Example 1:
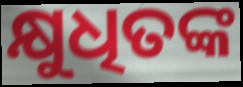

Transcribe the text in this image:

କ୍ଷୁଧିତଙ୍କ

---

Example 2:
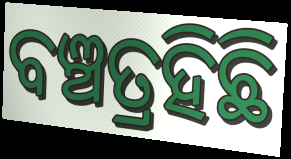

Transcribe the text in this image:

ବଞ୍ଚତ୍ରହିଛି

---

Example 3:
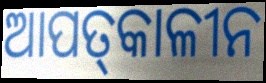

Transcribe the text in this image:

ଆପତ୍‌କାଳୀନ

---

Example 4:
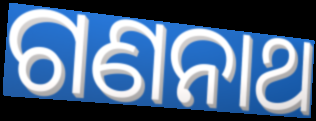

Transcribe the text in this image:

ଗଣନାଥ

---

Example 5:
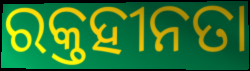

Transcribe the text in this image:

ରକ୍ତହୀନତା